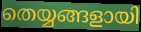
തെയ്യങ്ങളായി